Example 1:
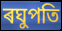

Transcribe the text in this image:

ৰঘুপতি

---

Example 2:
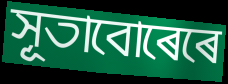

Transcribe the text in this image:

সূতাবোৰেৰে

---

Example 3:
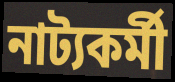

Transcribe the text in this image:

নাট্যকৰ্মী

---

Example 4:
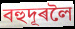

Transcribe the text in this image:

বহুদূৰলৈ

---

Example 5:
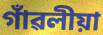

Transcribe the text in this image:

গাঁৱলীয়া